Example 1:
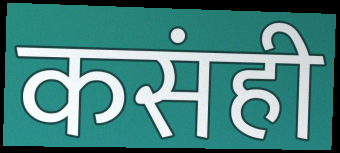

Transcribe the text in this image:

कसंही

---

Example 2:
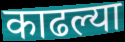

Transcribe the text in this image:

काढल्या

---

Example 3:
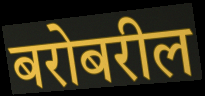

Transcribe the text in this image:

बरोबरील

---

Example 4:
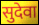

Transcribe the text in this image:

सुदेवा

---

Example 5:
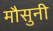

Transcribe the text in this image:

मौसुनी